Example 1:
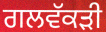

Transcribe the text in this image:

ਗਲਵੱਕਡ਼ੀ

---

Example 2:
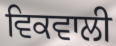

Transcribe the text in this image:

ਵਿਕਵਾਲੀ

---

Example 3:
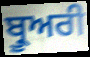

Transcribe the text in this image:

ਬ੍ਰੂਅਰੀ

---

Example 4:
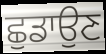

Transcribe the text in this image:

ਛੁਡਾਉਣ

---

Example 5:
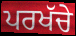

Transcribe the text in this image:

ਪਰਖੱਚੇ